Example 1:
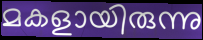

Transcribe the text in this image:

മകളായിരുന്നു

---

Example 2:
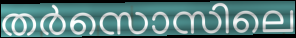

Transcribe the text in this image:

തർസൊസിലെ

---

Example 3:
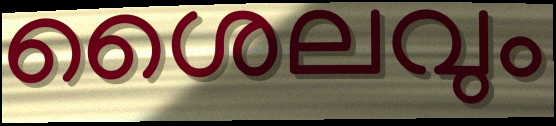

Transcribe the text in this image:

ശൈലവും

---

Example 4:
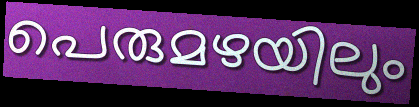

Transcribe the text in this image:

പെരുമഴയിലും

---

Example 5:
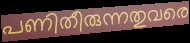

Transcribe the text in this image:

പണിതീരുന്നതുവരെ